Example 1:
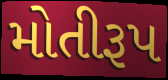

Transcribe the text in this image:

મોતીરૂપ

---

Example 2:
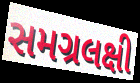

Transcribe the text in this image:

સમગ્રલક્ષી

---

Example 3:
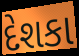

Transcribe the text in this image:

દેશકા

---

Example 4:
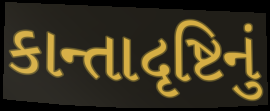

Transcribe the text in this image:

કાન્તાદૃષ્ટિનું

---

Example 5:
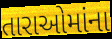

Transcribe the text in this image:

તારાઓમાંના